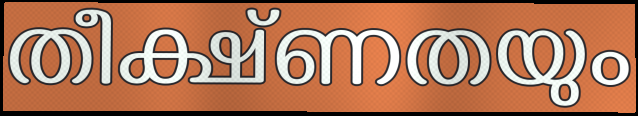
തീക്ഷ്‌ണതയും